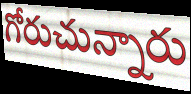
గోరుచున్నారు